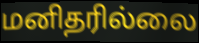
மனிதரில்லை